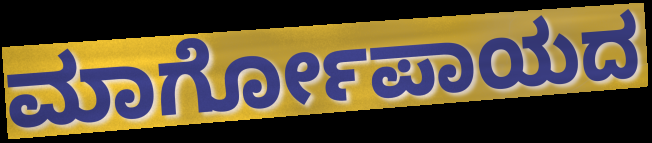
ಮಾರ್ಗೋಪಾಯದ